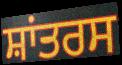
ਸ਼ਾਂਤਰਸ